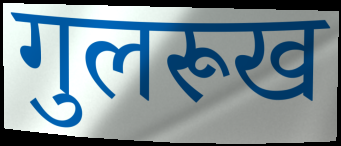
गुलरूख